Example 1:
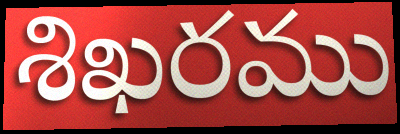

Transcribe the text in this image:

శిఖరము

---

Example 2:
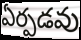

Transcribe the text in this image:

ఏర్పడవు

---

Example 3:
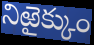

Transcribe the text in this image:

నిఱైక్కుం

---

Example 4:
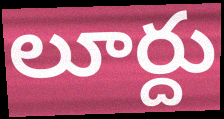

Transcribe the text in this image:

లూర్దు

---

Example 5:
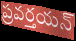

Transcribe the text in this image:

ప్రవర్తయన్